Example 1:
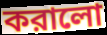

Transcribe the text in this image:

করালো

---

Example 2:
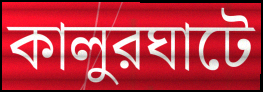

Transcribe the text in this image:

কালুরঘাটে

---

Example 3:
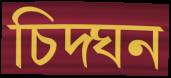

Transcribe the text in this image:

চিদ্ঘন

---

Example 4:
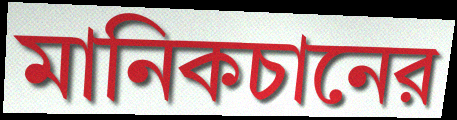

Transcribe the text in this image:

মানিকচানের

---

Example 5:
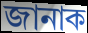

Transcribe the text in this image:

জানাক